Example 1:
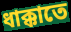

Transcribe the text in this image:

ধাক্কাতে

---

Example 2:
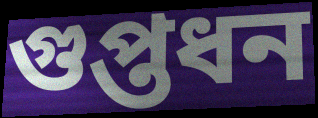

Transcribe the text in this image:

গুপ্তধন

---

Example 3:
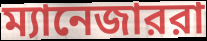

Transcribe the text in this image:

ম্যানেজাররা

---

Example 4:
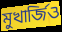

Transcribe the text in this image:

মুখার্জিও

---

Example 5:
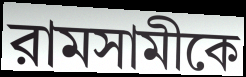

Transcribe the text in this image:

রামসামীকে